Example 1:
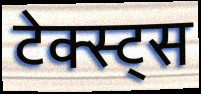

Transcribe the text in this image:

टेक्स्ट्स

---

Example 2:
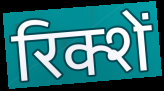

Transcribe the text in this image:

रिक्शें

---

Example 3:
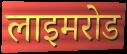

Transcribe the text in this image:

लाइमरोड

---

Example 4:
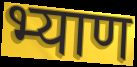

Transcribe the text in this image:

भ्याण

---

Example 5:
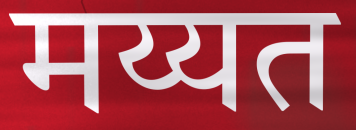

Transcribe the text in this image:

मय्यत